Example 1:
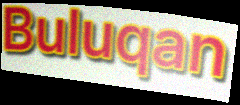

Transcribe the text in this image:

Buluqan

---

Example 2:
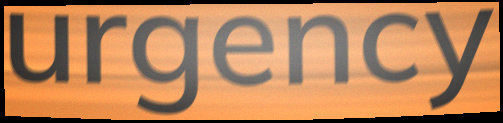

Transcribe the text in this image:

urgency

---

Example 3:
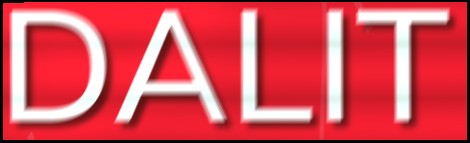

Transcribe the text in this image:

DALIT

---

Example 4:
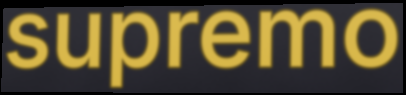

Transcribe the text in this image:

supremo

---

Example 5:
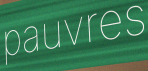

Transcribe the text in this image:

pauvres